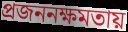
প্রজননক্ষমতায়